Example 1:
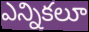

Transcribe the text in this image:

ఎన్నికలూ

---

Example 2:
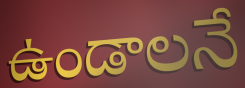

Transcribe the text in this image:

ఉండాలనే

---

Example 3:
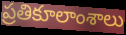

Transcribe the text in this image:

ప్రతికూలాంశాలు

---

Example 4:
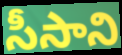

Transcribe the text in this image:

సీసాని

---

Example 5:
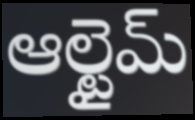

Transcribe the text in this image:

ఆల్టైమ్